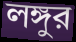
লঙ্গুর